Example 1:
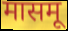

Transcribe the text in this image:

मासमू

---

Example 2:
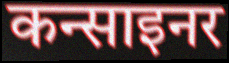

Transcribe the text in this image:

कन्साइनर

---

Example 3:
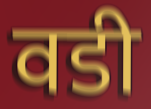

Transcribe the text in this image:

वडी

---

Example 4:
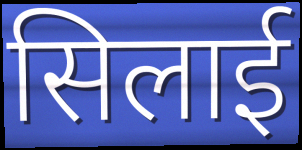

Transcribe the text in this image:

सिलाई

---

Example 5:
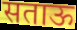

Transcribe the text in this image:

सताऊ